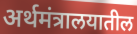
अर्थमंत्रालयातील